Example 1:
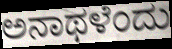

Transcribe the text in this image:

ಅನಾಥಳೆಂದು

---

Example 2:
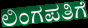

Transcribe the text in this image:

ಲಿಂಗಪತಿಗೆ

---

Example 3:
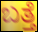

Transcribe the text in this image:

ಬತ್ತೆ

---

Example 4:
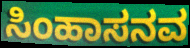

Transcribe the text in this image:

ಸಿಂಹಾಸನವ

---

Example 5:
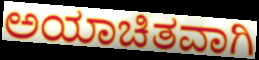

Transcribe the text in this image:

ಅಯಾಚಿತವಾಗಿ